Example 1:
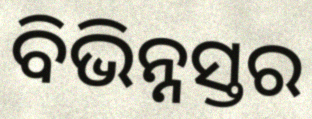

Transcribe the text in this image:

ବିଭିନ୍ନସ୍ତର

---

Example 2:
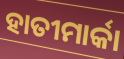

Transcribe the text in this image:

ହାତୀମାର୍କା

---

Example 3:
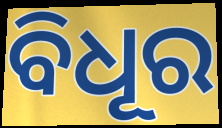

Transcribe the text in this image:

ବିଧୂର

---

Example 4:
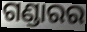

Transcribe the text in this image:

ଗଣ୍ଡାରର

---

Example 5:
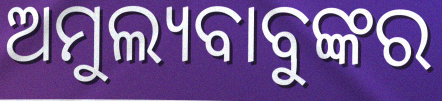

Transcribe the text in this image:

ଅମୁଲ୍ୟବାବୁଙ୍କର